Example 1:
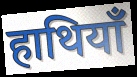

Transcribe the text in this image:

हाथियाँ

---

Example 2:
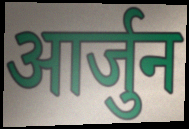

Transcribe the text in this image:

आर्जुन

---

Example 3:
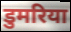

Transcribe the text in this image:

डुमरिया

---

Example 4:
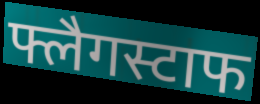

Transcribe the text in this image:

फ्लैगस्टाफ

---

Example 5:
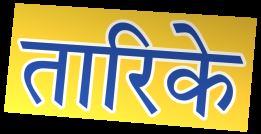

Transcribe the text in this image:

तारिके